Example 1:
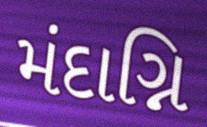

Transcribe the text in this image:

મંદાગ્નિ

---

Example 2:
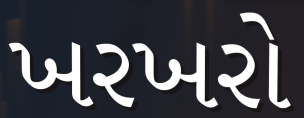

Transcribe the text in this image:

ખરખરો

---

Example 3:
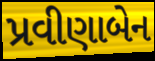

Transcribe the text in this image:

પ્રવીણાબેન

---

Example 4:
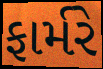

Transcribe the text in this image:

ફાર્મરે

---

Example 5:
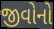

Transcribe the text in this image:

જીવોનો